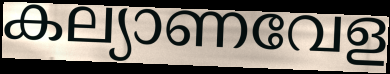
കല്യാണവേള